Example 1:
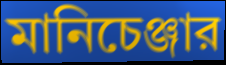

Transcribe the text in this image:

মানিচেঞ্জার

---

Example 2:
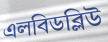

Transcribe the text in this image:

এলবিডব্লিউ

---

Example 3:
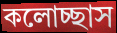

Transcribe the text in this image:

কলোচ্ছাস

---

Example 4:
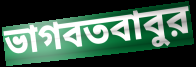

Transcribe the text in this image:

ভাগবতবাবুর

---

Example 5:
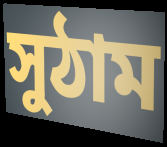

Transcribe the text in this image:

সুঠাম